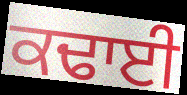
ਕਢਾਈ